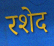
रशेद